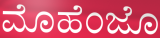
ಮೊಹೆಂಜೊ